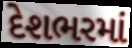
દેશભરમાં